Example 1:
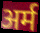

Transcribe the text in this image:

अर्म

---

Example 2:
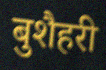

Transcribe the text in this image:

बुशैहरी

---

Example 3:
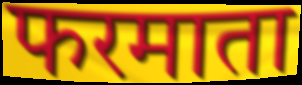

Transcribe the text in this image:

फरमाता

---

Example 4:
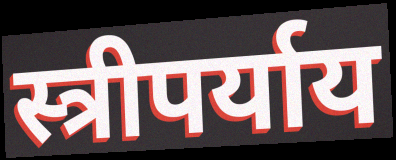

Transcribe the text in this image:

स्त्रीपर्याय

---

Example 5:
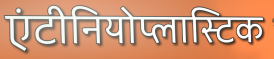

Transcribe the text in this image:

एंटीनियोप्लास्टिक